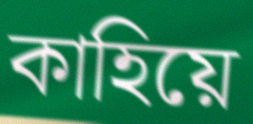
কাহিয়ে